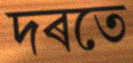
দৰতে